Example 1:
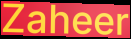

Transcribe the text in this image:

Zaheer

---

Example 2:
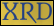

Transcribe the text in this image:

XRD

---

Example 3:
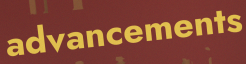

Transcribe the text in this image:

advancements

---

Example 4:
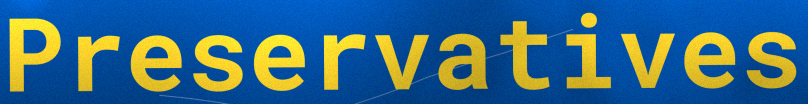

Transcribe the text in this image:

Preservatives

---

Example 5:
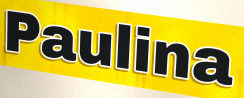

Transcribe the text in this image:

Paulina